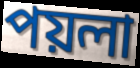
পয়লা